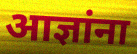
आज्ञांना